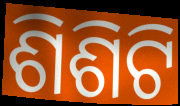
ଶିଶିଟି